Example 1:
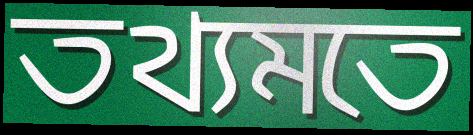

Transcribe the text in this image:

তথ্যমতে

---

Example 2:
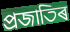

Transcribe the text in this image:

প্ৰজাতিৰ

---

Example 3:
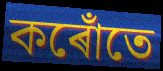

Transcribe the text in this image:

কৰোঁতে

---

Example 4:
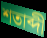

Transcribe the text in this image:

শতাব্দী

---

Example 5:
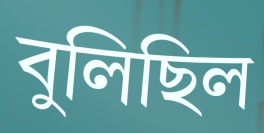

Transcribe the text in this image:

বুলিছিল